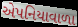
એપનિયાવાળા